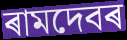
ৰামদেবৰ